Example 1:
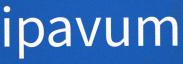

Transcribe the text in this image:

ipavum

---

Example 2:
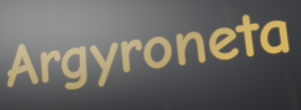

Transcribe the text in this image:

Argyroneta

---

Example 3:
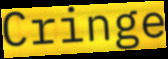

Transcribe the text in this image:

Cringe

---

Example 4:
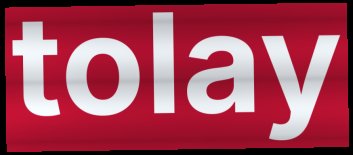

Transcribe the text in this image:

tolay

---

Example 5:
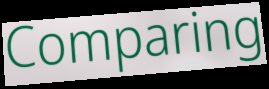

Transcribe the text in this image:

Comparing